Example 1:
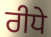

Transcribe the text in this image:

ਰੀਧੇ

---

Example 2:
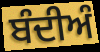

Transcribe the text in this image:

ਬੰਦੀਅੰ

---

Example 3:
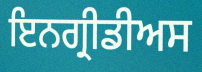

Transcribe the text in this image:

ਇਨਗ੍ਰੀਡੀਅਸ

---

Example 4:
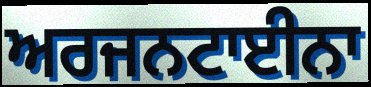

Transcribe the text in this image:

ਅਰਜਨਟਾਈਨਾ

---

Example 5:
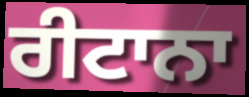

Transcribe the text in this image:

ਰੀਟਾਨਾ